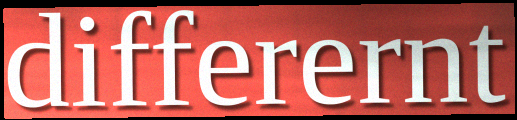
differernt